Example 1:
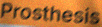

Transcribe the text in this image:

Prosthesis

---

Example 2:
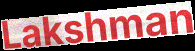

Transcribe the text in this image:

Lakshman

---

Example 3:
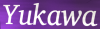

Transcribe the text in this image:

Yukawa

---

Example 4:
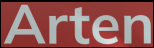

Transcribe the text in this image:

Arten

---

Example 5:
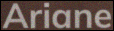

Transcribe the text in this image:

Ariane